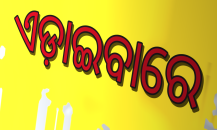
ଏଡ଼ାଇବାରେ